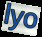
lyo